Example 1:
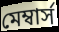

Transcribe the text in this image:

মেম্বার্স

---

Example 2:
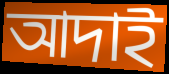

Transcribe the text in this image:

আদাই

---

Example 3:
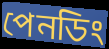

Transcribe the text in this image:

পেনডিং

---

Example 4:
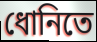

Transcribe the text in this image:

ধোনিতে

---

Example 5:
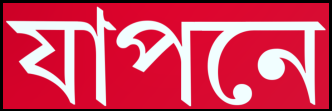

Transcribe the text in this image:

যাপনে